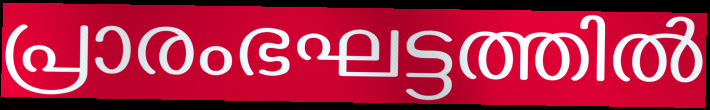
പ്രാരംഭഘട്ടത്തിൽ